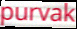
purvak